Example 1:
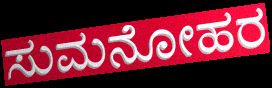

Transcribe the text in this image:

ಸುಮನೋಹರ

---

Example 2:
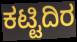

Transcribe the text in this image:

ಕಟ್ಟಿದಿರ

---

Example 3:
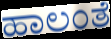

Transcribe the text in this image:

ಹಾಲಂತೆ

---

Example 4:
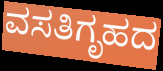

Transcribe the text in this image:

ವಸತಿಗೃಹದ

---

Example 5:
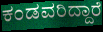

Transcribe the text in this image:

ಕಂಡವರಿದ್ದಾರೆ